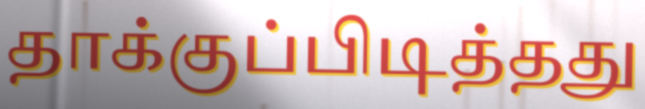
தாக்குப்பிடித்தது